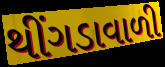
થીંગડાવાળી